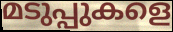
മടുപ്പുകളെ